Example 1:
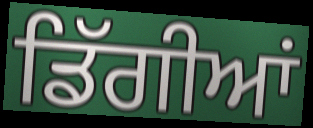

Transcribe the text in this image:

ਡਿੱਗੀਆਂ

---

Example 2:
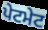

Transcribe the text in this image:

ਪੇਟਮੇਟ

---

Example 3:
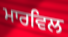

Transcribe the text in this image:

ਮਾਰਵਿਲ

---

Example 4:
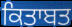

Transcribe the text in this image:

ਕਿਤਾਬਤ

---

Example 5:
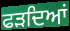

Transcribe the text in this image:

ਫੜਦਿਆਂ